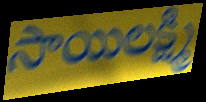
సాయిలక్ష్మి